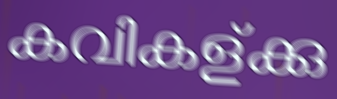
കവികള്ക്കു